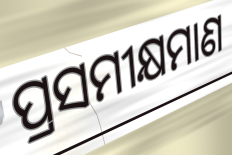
ପ୍ରସମୀକ୍ଷମାଣ